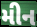
મીન